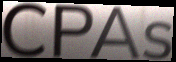
CPAs